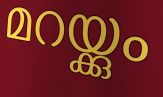
മറയ്ക്കും